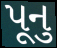
પૂનુ